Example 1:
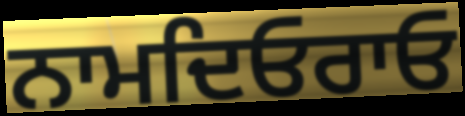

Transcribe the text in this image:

ਨਾਮਦਿਓਰਾਓ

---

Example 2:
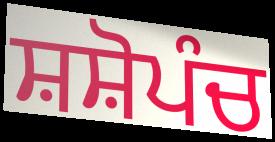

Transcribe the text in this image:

ਸ਼ਸ਼ੋਪੰਚ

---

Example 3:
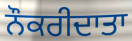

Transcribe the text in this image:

ਨੌਕਰੀਦਾਤਾ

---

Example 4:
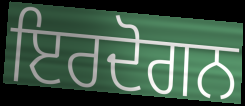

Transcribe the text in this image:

ਇਰਦੋਗਨ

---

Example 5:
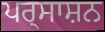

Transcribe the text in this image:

ਪਰ੍ਸਾਸ਼ਨ